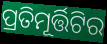
ପ୍ରତିମୂର୍ତ୍ତିଟିର